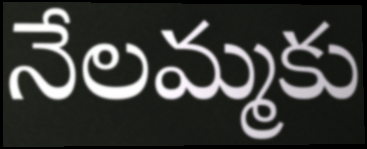
నేలమ్మకు